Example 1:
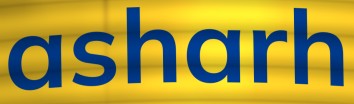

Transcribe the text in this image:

asharh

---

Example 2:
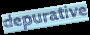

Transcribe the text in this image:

depurative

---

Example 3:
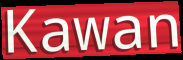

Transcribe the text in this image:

Kawan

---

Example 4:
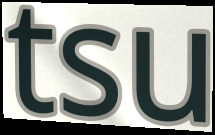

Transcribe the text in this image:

tsu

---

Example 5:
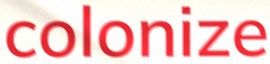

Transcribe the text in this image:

colonize